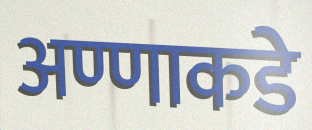
अण्णाकडे